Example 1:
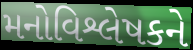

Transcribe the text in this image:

મનોવિશ્લેષકને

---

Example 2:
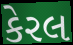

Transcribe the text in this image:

કેરલ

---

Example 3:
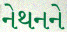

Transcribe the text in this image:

નેથનને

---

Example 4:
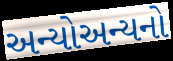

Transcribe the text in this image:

અન્યોઅન્યનો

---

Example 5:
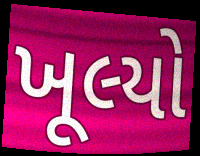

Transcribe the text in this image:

ખૂલ્યો